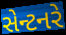
સેન્ટનરે